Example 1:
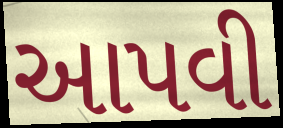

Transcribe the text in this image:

આપવી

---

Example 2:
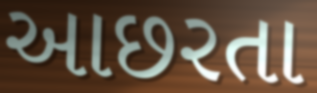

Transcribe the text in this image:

આછરતા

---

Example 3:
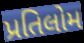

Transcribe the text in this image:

પ્રતિલોમ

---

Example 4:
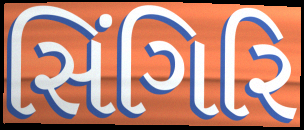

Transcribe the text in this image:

સિંગિરિ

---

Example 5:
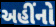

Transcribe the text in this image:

અહીંનો